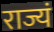
राज्यं